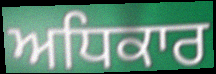
ਅਧਿਕਾਰ